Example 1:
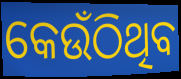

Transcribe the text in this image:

କେଉଁଠିଥିବ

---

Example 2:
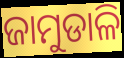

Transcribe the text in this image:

ଜାମୁଡାଳି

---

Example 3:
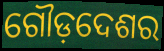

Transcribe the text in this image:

ଗୌଡ଼ଦେଶର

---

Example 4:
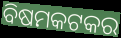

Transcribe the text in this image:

ବିଷମକଟକର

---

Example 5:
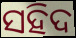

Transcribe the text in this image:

ସହିଦ